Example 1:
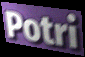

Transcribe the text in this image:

Potri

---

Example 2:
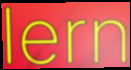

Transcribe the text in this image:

lern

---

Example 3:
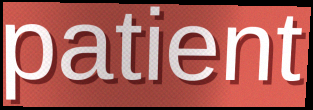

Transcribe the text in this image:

patient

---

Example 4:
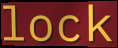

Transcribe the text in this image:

lock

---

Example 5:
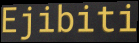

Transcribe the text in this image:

Ejibiti